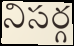
నిసర్గ